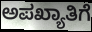
ಅಪಖ್ಯಾತಿಗೆ